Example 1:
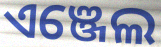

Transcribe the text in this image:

ଏଞ୍ଜେଲ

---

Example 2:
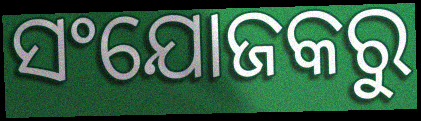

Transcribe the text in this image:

ସଂଯୋଜକରୁ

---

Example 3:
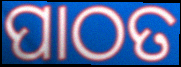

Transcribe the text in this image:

ପାଠତ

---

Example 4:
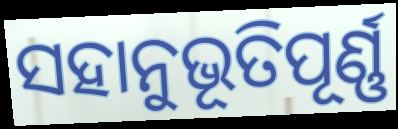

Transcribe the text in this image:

ସହାନୁଭୂତିପୂର୍ଣ୍ଣ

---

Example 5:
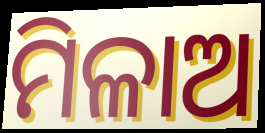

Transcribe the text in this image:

ମିଳାଅ